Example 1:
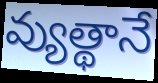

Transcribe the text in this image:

వ్యుత్థానే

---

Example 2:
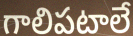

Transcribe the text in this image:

గాలిపటాలే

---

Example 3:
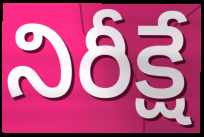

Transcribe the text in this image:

నిరీక్షే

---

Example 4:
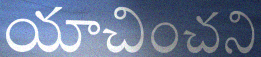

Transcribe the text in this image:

యాచించని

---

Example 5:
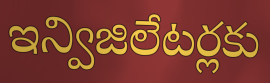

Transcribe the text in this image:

ఇన్విజిలేటర్లకు